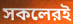
সকলেরই